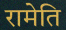
रामेति